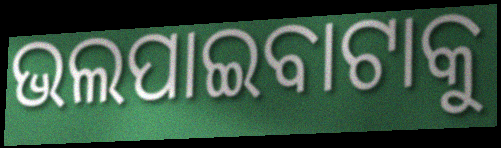
ଭଲପାଇବାଟାକୁ